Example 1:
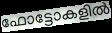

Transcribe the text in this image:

ഫോട്ടോകളിൽ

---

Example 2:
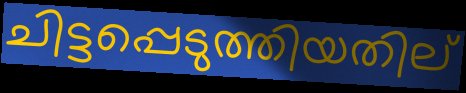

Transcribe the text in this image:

ചിട്ടപ്പെടുത്തിയതില്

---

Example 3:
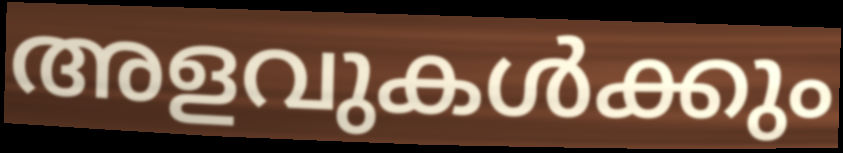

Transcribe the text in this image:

അളവുകൾക്കും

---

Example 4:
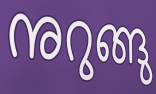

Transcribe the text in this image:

നുറുങ്ങു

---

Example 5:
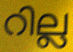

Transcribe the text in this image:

റില്ല